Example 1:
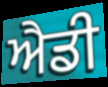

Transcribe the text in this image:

ਐਡੀ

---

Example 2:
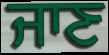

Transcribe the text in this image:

ਜਾਣ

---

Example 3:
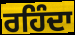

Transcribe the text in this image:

ਰਹਿੰਦਾ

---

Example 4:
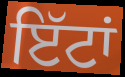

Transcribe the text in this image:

ਇੱਟਾਂ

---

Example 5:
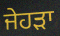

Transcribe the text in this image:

ਜੇਹੜਾ